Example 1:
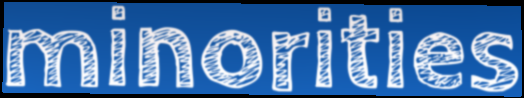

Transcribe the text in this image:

minorities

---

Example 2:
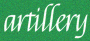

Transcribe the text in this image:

artillery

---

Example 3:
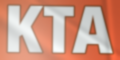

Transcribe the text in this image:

KTA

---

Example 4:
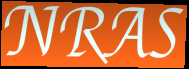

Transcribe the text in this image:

NRAS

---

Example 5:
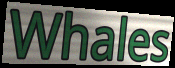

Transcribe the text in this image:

Whales